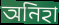
অনিহা